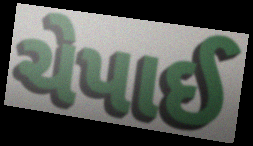
ચેપાઈ